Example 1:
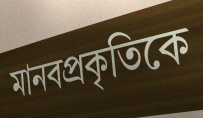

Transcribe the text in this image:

মানবপ্রকৃতিকে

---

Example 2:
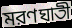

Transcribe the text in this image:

মরণঘাতী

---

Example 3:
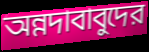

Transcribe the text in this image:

অন্নদাবাবুদের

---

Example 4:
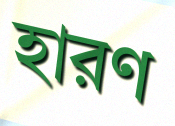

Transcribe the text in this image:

হারণ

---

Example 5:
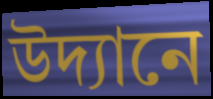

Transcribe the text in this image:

উদ্যানে